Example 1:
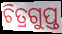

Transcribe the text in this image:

ଚିତ୍ରଗୁପ୍ତ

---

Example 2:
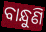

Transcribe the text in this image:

ବାନ୍ଧୁଣି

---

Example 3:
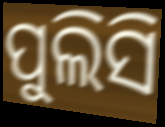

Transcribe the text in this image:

ପୁଲିସି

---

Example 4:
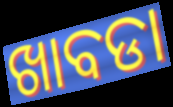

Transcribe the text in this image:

ଖାବଡା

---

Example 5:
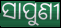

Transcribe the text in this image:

ସାପୁଣୀ